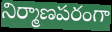
నిర్మాణపరంగా